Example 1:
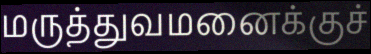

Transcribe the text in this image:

மருத்துவமனைக்குச்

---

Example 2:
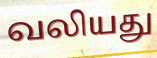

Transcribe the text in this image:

வலியது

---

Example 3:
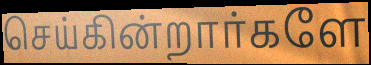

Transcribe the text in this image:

செய்கின்றார்களே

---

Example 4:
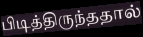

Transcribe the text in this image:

பிடித்திருந்ததால்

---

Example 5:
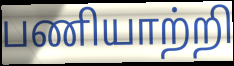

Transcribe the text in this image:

பணியாற்றி